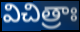
విచిత్రాః